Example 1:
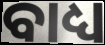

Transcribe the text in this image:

ବାଧ୍ୟ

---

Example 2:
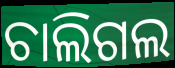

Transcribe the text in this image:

ଚାଲିଗଲ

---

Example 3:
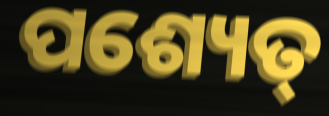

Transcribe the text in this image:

ପଶ୍ୟେତ୍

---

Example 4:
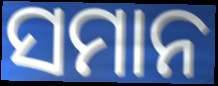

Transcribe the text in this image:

ସମାନ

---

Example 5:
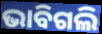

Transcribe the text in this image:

ଭାବିଗଲି